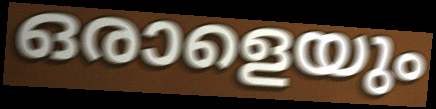
ഒരാളെയും